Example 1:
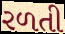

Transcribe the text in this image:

રળતી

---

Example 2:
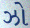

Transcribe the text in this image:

ઝો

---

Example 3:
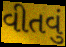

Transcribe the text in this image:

વીતવું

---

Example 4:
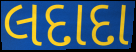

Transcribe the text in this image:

લદાદા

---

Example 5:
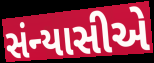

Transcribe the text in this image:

સંન્યાસીએ